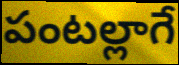
పంటల్లాగే